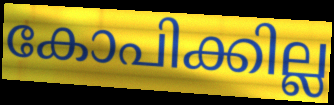
കോപിക്കില്ല